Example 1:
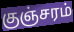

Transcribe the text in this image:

குஞ்சரம்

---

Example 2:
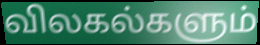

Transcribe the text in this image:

விலகல்களும்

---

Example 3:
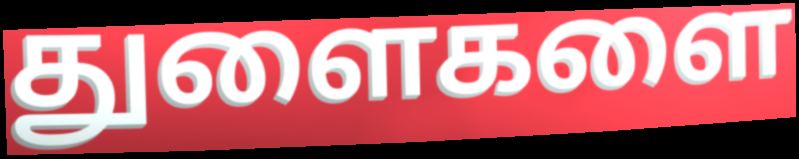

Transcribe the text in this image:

துளைகளை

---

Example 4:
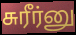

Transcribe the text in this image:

சுரீர்னு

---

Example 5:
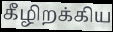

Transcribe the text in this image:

கீழிறக்கிய